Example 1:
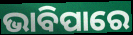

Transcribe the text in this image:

ଭାବିପାରେ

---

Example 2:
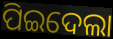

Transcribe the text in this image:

ପିଇଦେଲା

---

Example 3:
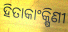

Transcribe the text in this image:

ହିତାକାଂକ୍ଷିଣୀ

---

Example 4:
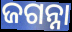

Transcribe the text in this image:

ଜଗନ୍ନା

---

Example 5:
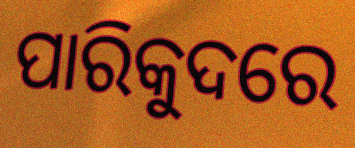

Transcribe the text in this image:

ପାରିକୁଦରେ